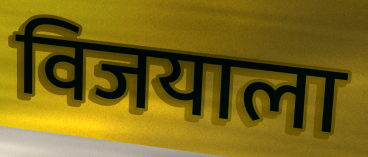
विजयाला